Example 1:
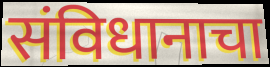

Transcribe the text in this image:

संविधानाचा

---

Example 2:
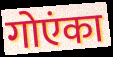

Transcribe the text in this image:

गोएंका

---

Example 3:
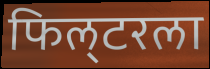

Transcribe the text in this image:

फिल्टरला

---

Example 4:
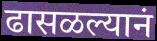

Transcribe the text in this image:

ढासळल्यानं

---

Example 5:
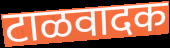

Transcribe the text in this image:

टाळवादक